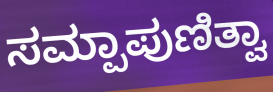
ಸಮ್ಪಾಪುಣಿತ್ವಾ